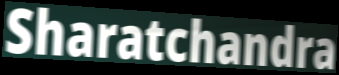
Sharatchandra